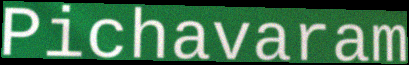
Pichavaram